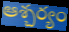
ఆశ్చర్యం